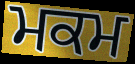
ਮਕਮ